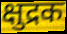
क्षुद्रक